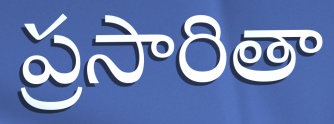
ప్రసారితా